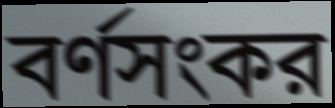
বর্ণসংকর